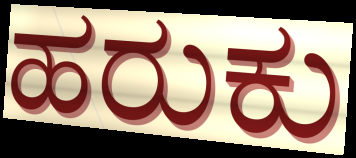
ಹರುಕು